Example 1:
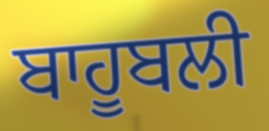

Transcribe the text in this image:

ਬਾਹੂਬਲੀ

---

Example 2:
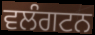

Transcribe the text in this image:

ਵਲੰਗਟਨ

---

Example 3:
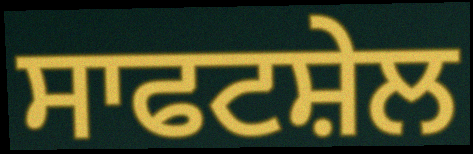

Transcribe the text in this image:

ਸਾਫਟਸ਼ੇਲ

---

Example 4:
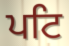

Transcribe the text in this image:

ਪਟਿ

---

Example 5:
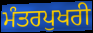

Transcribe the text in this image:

ਮੰਤਰਪੁਖਰੀ